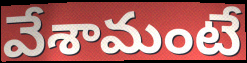
వేశామంటే